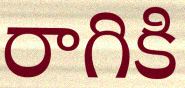
రాగికి